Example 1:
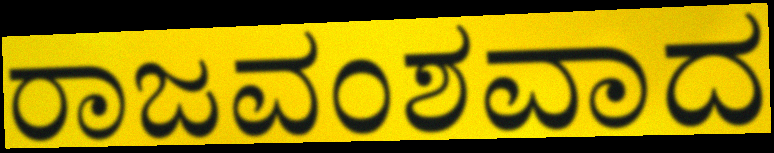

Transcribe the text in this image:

ರಾಜವಂಶವಾದ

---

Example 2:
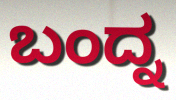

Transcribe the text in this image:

ಬಂದ್ನ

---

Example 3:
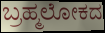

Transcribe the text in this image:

ಬ್ರಹ್ಮಲೋಕದ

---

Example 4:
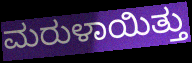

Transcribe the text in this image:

ಮರುಳಾಯಿತ್ತು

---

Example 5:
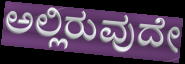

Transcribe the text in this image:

ಅಲ್ಲಿರುವುದೇ